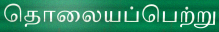
தொலையப்பெற்று